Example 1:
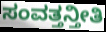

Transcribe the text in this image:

ಸಂವತ್ತನ್ತೀತಿ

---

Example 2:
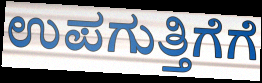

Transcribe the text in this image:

ಉಪಗುತ್ತಿಗೆಗೆ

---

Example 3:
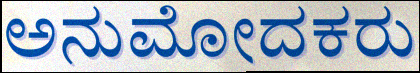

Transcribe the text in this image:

ಅನುಮೋದಕರು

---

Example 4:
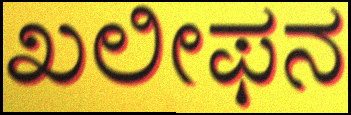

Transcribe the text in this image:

ಖಲೀಫನ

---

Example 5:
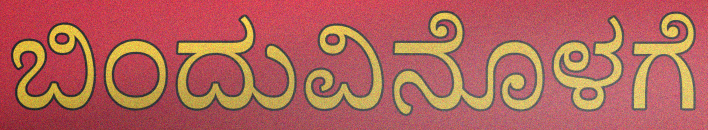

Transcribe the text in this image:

ಬಿಂದುವಿನೊಳಗೆ